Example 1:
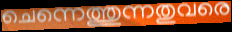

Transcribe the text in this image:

ചെന്നെത്തുന്നതുവരെ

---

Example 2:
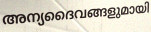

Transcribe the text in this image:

അന്യദൈവങ്ങളുമായി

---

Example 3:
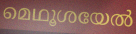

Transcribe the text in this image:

മെഥൂശയേൽ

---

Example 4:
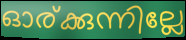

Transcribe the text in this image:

ഓര്ക്കുന്നില്ലേ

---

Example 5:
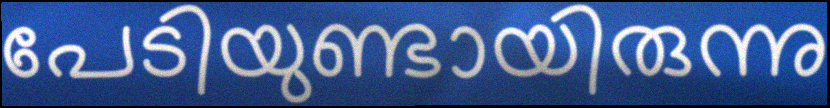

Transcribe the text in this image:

പേടിയുണ്ടായിരുന്നു